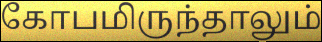
கோபமிருந்தாலும்